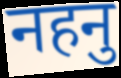
नहनु